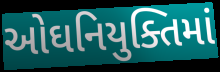
ઓઘનિયુક્તિમાં